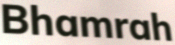
Bhamrah